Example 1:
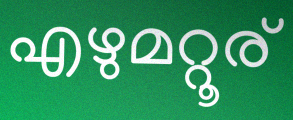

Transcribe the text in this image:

എഴുമറ്റൂര്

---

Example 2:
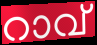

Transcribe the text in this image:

റാവ്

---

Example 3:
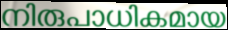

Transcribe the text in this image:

നിരുപാധികമായ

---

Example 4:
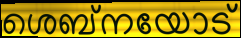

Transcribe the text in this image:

ശെബ്നയോട്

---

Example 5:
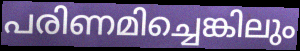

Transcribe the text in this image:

പരിണമിച്ചെങ്കിലും